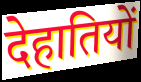
देहातियों